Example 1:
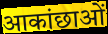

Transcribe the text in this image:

आकांछाओं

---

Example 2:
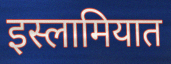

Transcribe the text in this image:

इस्लामियात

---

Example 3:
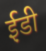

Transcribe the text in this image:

ई़डी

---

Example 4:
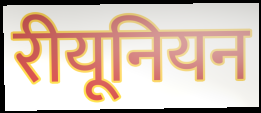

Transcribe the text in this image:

रीयूनियन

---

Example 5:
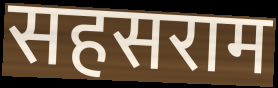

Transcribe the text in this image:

सहसराम